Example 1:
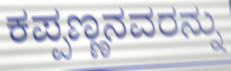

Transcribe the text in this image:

ಕಪ್ಪಣ್ಣನವರನ್ನು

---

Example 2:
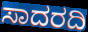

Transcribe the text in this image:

ಸಾದರದಿ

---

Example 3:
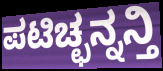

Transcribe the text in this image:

ಪಟಿಚ್ಛನ್ನನ್ತಿ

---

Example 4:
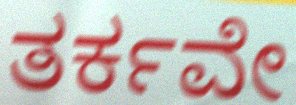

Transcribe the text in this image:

ತರ್ಕವೇ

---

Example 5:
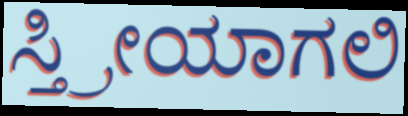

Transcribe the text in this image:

ಸ್ತ್ರೀಯಾಗಲಿ